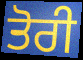
ਤੋਰੀ